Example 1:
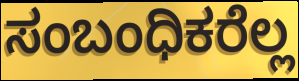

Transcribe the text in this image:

ಸಂಬಂಧಿಕರೆಲ್ಲ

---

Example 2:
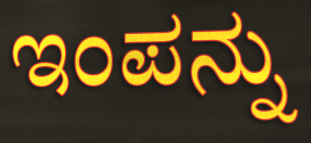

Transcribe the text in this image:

ಇಂಪನ್ನು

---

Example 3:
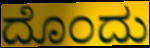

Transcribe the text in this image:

ದೊಂದು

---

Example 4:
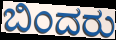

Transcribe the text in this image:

ಬಿಂದರು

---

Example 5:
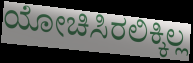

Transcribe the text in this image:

ಯೋಚಿಸಿರಲಿಕ್ಕಿಲ್ಲ